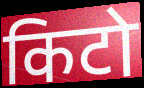
किटो